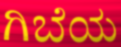
ಗಿಬೆಯ